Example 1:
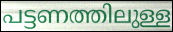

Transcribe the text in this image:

പട്ടണത്തിലുള്ള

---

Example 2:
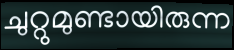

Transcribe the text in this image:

ചുറ്റുമുണ്ടായിരുന്ന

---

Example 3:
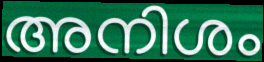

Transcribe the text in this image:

അനിശം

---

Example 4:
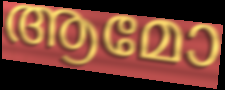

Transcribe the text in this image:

ആമോ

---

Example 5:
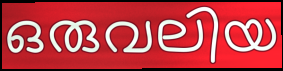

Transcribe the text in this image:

ഒരുവലിയ